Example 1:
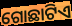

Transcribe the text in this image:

ଗୋଛାଟିଏ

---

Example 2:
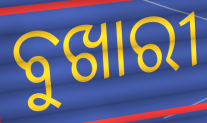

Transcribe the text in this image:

ବୁଖାରୀ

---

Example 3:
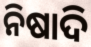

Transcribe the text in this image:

ନିଷାଦି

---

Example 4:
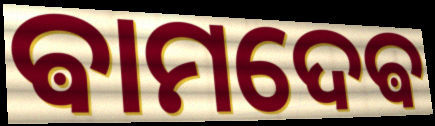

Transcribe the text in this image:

ଵାମଦେଵ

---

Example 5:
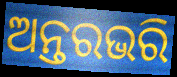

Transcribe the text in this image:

ଅନ୍ତରଭରି